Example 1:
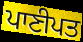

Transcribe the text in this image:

ਪਾਣੀਪਤ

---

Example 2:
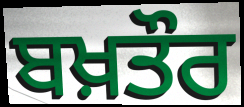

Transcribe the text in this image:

ਬਖ਼ਤੌਰ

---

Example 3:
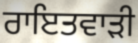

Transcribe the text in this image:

ਰਾਇਤਵਾੜੀ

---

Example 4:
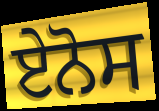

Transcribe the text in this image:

ਏਨੋਸ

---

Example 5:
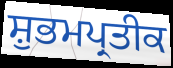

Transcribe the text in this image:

ਸ਼ੁਭਮਪ੍ਰਤੀਕ